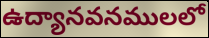
ఉద్యానవనములలో